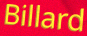
Billard